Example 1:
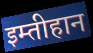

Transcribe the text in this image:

इम्तीहान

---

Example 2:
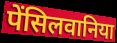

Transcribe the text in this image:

पेंसिलवानिया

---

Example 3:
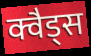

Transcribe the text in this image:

क्वैड्स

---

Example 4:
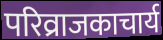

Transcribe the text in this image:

परिव्राजकाचार्य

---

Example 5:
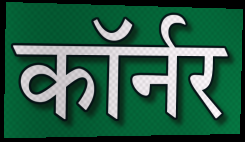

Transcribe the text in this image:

कॉर्नर